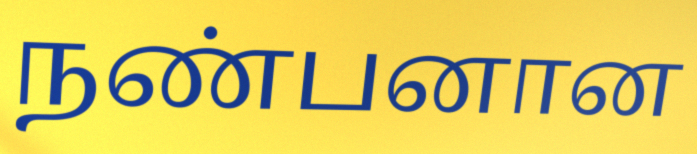
நண்பனான